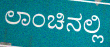
ಲಾಂಚಿನಲ್ಲಿ